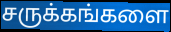
சருக்கங்களை